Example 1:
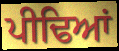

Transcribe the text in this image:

ਪੀਢਿਆਂ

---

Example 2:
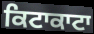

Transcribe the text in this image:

ਕਿਟਾਕਾਟਾ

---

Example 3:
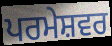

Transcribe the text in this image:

ਪਰਮੇਸ਼ਵਰ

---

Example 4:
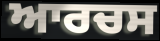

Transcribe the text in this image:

ਆਰਚਸ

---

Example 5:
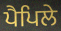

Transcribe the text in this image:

ਪੈਪਿਲੇ